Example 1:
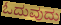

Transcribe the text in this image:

ಓದುವುದು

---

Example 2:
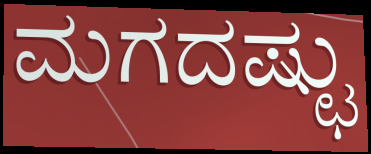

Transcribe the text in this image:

ಮಗದಷ್ಟು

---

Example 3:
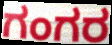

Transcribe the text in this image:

ಗಂಗರ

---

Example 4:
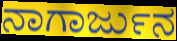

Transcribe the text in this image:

ನಾಗಾರ್ಜುನ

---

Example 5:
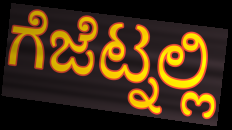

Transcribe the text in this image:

ಗೆಜೆಟ್ನಲ್ಲಿ